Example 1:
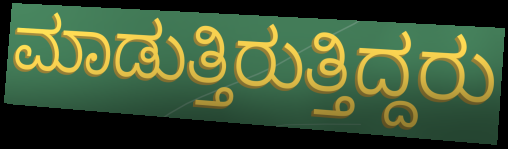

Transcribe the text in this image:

ಮಾಡುತ್ತಿರುತ್ತಿದ್ದರು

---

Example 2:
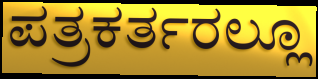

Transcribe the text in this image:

ಪತ್ರಕರ್ತರಲ್ಲೂ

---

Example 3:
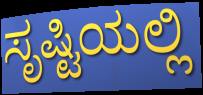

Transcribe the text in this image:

ಸೃಷ್ಟಿಯಲ್ಲಿ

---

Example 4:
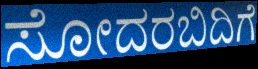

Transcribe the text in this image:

ಸೋದರಬಿದಿಗೆ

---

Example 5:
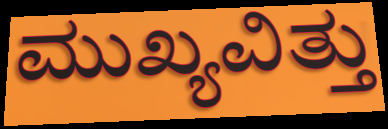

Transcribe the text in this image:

ಮುಖ್ಯವಿತ್ತು